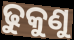
ଢୁକୁଣୁ